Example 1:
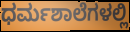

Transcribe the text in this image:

ಧರ್ಮಶಾಲೆಗಳಲ್ಲಿ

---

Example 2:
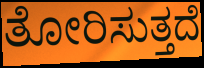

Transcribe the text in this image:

ತೋರಿಸುತ್ತದೆ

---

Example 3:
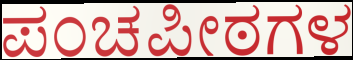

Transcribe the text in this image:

ಪಂಚಪೀಠಗಳ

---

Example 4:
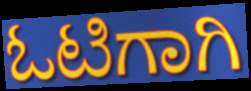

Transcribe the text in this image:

ಓಟಿಗಾಗಿ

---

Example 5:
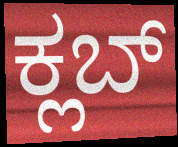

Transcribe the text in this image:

ಕ್ಲಬ್